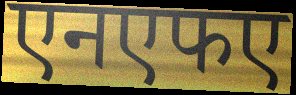
एनएफए